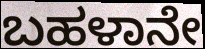
ಬಹಳಾನೇ